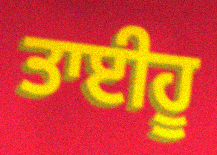
ਤਾਈਹੂ